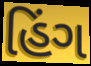
હિંગ